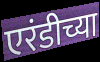
एरंडीच्या